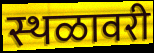
स्थळावरी